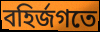
বহির্জগতে